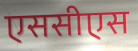
एससीएस